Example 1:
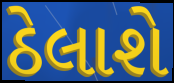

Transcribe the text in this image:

ઠેલાશે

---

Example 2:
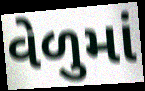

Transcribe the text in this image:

વેળુમાં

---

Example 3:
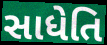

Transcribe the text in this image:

સાધેતિ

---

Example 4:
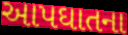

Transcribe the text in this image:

આપઘાતના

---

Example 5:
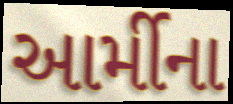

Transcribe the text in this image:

આર્મીના